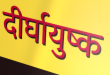
दीर्घायुष्क